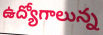
ఉద్యోగాలున్న